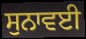
ਸੁਨਾਵਈ